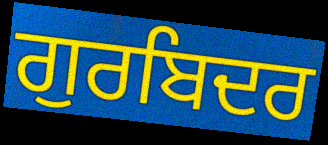
ਗੁਰਬਿਦਰ